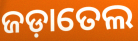
ଜଡ଼ାତେଲ